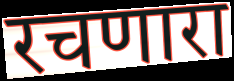
रचणारा